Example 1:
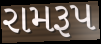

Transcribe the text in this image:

રામરૂપ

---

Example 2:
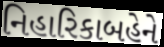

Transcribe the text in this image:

નિહારિકાબહેને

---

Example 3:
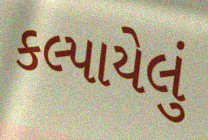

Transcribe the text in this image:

કલ્પાયેલું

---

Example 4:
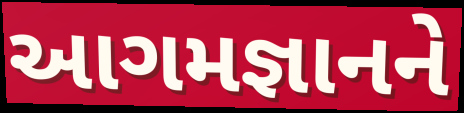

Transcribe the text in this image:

આગમજ્ઞાનને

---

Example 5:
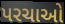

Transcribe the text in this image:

પરચાઓ